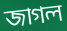
জাগল